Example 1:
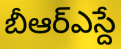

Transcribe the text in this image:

బీఆర్ఎస్దే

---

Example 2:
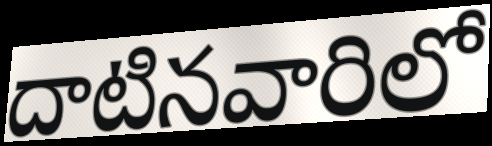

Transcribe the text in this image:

దాటినవారిలో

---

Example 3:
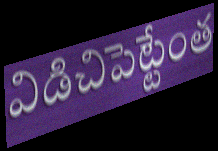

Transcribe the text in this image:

విడిచిపెట్టేంత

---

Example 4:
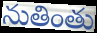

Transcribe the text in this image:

నుతింతు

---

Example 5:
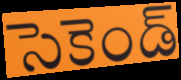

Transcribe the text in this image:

సెకెండ్